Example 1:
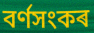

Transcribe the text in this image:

বৰ্ণসংকৰ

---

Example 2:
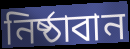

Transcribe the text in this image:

নিষ্ঠাবান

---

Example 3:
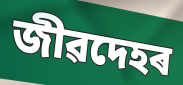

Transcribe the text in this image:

জীৱদেহৰ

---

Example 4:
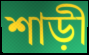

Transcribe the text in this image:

শাড়ী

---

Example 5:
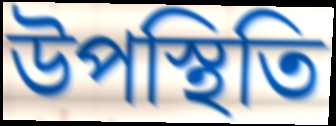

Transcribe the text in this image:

উপস্থিতি